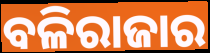
ବଳିରାଜାର